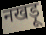
नखड़ू